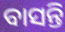
ବାସନ୍ତି